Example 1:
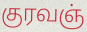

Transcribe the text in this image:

குரவஞ்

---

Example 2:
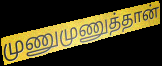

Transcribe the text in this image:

முணுமுணுத்தான்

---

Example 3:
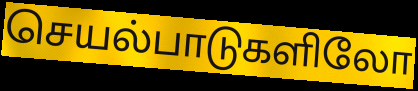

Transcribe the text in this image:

செயல்பாடுகளிலோ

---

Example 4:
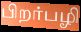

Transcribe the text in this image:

பிறர்பழி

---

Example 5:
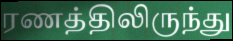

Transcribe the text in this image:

ரணத்திலிருந்து